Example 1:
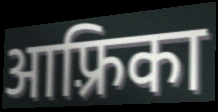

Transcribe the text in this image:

आफ़्रिका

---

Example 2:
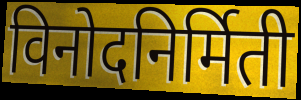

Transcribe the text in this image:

विनोदनिर्मिती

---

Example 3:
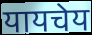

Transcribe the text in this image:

यायचेय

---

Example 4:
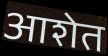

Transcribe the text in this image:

आशेत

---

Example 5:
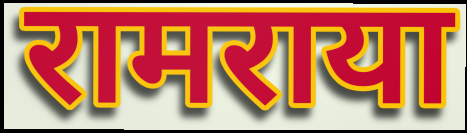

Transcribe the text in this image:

रामराया